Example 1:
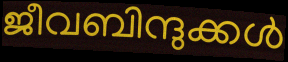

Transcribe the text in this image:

ജീവബിന്ദുക്കൾ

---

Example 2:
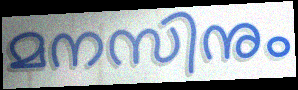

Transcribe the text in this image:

മനസിനും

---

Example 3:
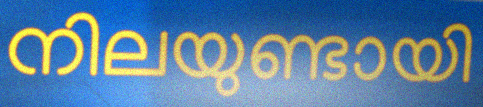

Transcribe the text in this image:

നിലയുണ്ടായി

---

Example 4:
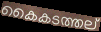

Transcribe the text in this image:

കൈകടത്തല്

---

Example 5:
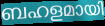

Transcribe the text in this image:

ബഹളമായി